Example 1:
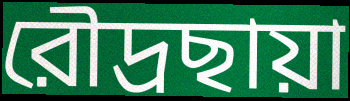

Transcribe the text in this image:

রৌদ্রছায়া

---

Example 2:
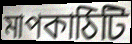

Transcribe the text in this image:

মাপকাঠিটি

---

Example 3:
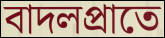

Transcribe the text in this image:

বাদলপ্রাতে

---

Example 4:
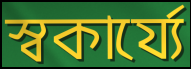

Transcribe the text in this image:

স্বকার্য্যে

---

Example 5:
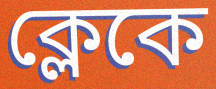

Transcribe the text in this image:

ক্লেকে